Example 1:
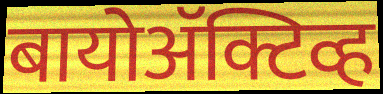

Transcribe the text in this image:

बायोॲक्टिव्ह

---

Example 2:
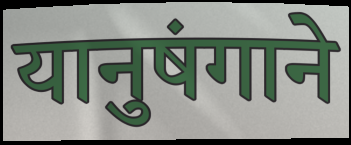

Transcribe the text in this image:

यानुषंगाने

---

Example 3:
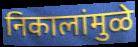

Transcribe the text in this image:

निकालांमुळे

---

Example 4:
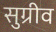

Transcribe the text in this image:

सुग्रीव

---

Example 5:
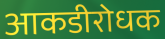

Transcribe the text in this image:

आकडीरोधक